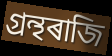
গ্ৰন্থৰাজি